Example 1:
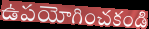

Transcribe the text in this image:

ఉపయోగించకండి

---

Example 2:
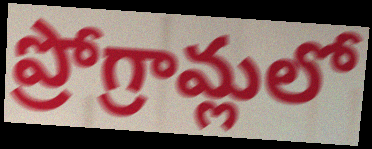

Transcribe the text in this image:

ప్రోగ్రామ్లలో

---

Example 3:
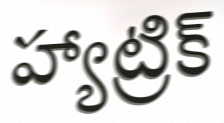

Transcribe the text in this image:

హ్యాట్రిక్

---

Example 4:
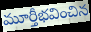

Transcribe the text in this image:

మూర్తీభవించిన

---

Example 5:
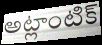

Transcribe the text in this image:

అట్లాంటిక్